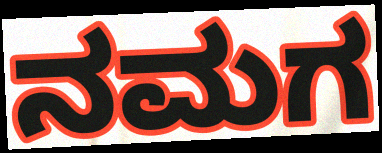
ನಮಗ